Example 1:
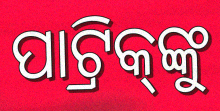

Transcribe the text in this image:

ପାଟ୍ରିକ୍‌ଙ୍କୁ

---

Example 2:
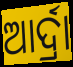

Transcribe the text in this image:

ଆର୍ଦ୍ରା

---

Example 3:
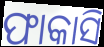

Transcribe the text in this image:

ଫାକାସି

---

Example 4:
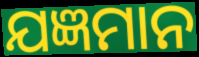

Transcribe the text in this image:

ଯଜ୍ଞମାନ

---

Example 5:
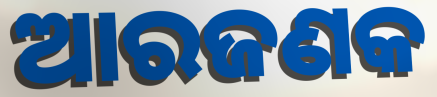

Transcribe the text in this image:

ଆରଜଣକ